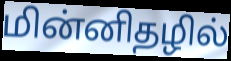
மின்னிதழில்